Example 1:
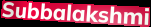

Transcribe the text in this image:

Subbalakshmi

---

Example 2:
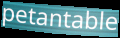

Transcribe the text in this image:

petantable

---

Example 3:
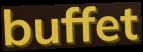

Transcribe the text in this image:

buffet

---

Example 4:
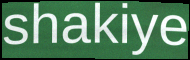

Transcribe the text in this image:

shakiye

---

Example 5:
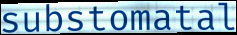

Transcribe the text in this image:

substomatal